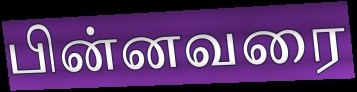
பின்னவரை